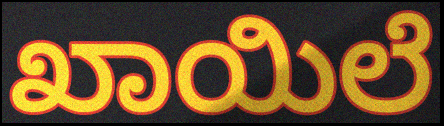
ಖಾಯಿಲೆ